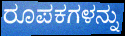
ರೂಪಕಗಳನ್ನು